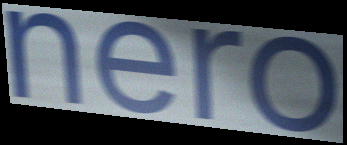
nero